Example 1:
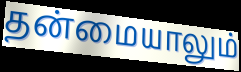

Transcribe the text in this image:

தன்மையாலும்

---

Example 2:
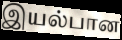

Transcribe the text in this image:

இயல்பான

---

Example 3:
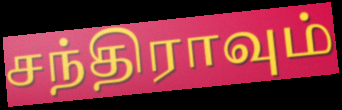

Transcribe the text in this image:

சந்திராவும்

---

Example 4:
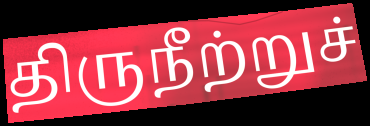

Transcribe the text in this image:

திருநீற்றுச்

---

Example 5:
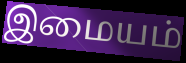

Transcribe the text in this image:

இமையம்